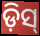
ଡ଼ିସ୍